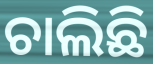
ଚାଲିଛି